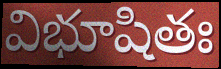
విభూషితః